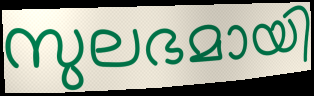
സുലഭമായി